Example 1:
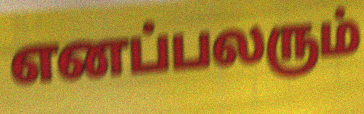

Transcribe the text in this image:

எனப்பலரும்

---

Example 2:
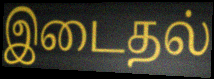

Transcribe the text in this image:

இடைதல்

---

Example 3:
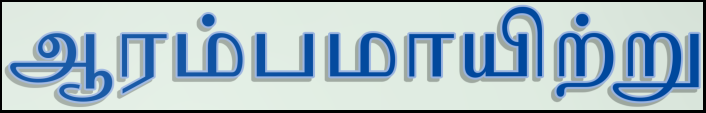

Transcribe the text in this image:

ஆரம்பமாயிற்று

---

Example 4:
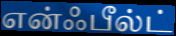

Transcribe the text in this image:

என்ஃபீல்ட்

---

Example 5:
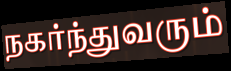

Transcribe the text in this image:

நகர்ந்துவரும்